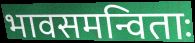
भावसमन्विताः